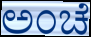
ಅಂಚೆ